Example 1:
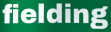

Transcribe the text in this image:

fielding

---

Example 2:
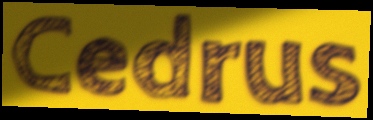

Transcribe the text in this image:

Cedrus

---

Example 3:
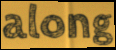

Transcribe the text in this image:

along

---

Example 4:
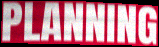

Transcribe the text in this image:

PLANNING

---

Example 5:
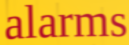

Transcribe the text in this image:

alarms